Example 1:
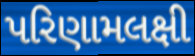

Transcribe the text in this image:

પરિણામલક્ષી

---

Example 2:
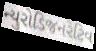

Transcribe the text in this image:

ન્યુરોડિજનરેટિવ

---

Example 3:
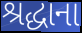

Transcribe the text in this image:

શ્રદ્ધાના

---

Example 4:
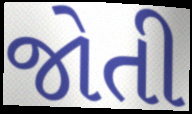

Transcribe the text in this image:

જોતી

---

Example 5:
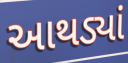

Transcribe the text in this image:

આથડ્યાં